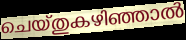
ചെയ്തുകഴിഞ്ഞാൽ